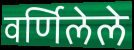
वर्णिलेले